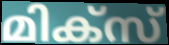
മിക്സ്